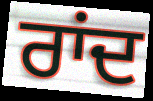
ਰਾਂਦ